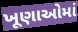
ખૂણાઓમાં